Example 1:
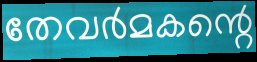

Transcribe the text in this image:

തേവർമകന്റെ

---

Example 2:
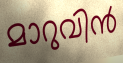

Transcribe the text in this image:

മാറുവിൻ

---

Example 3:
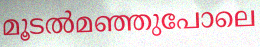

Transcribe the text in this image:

മൂടൽമഞ്ഞുപോലെ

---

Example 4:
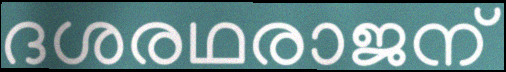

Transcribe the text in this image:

ദശരഥരാജന്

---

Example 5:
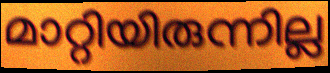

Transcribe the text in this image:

മാറ്റിയിരുന്നില്ല